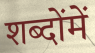
शब्दोंमें